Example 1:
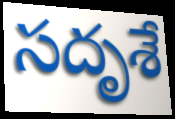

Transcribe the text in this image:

సదృశే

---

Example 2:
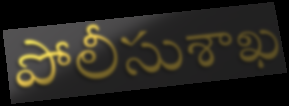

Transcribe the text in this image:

పోలీసుశాఖ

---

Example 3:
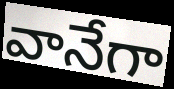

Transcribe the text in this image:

వానేగా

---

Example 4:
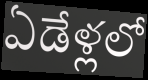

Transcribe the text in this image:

ఏడేళ్లలో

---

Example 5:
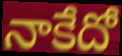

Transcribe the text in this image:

నాకేదో